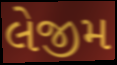
લેજીમ